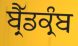
ਬ੍ਰੈੱਡਕ੍ਰੰਬ